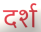
दर्श